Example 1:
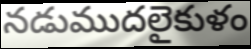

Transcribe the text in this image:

నడుముదలైకుళం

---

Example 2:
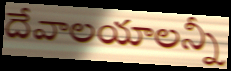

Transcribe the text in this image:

దేవాలయాలన్నీ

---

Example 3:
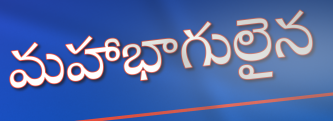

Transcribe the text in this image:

మహాభాగులైన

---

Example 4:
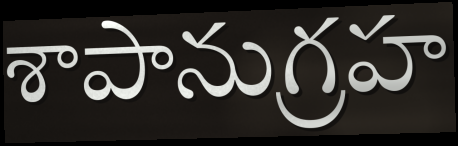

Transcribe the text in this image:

శాపానుగ్రహ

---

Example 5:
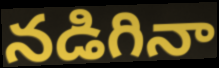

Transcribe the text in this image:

నడిగినా